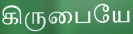
கிருபையே